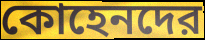
কোহেনদের